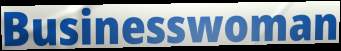
Businesswoman